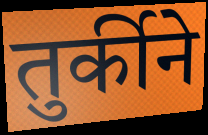
तुर्कीने